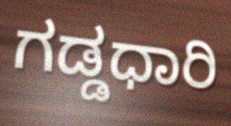
ಗಡ್ಡಧಾರಿ